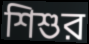
শিশুর